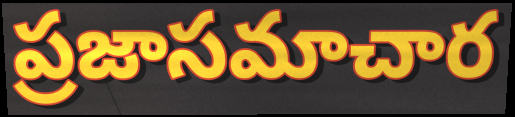
ప్రజాసమాచార